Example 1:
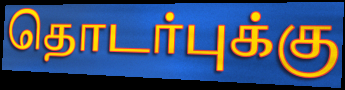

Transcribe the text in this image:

தொடர்புக்கு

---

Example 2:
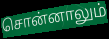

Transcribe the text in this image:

சொன்னாலும்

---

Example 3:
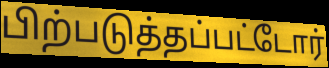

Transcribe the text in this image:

பிற்படுத்தப்பட்டோர்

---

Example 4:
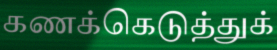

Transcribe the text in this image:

கணக்கெடுத்துக்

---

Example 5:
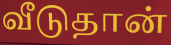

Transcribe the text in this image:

வீடுதான்